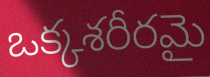
ఒక్కశరీరమై